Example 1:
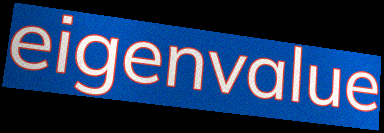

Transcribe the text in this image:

eigenvalue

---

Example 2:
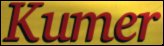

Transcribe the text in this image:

Kumer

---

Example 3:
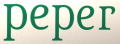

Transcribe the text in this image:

peper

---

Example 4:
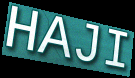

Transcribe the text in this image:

HAJI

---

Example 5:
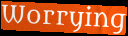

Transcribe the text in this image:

Worrying